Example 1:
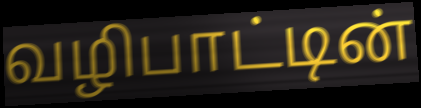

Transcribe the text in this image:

வழிபாட்டின்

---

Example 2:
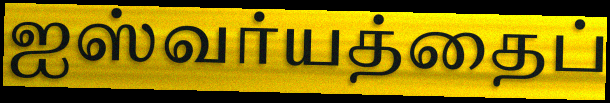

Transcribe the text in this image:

ஐஸ்வர்யத்தைப்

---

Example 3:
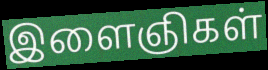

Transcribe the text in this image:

இளைஞிகள்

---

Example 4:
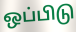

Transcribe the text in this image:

ஒப்பிடு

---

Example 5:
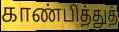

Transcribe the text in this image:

காண்பித்துத்